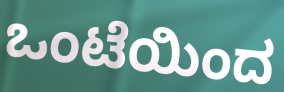
ಒಂಟೆಯಿಂದ